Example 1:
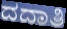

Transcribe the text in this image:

ದದಾತಿ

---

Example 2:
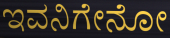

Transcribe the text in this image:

ಇವನಿಗೇನೋ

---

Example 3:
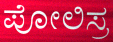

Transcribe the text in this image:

ಪೋಲಿಸ್ರ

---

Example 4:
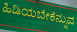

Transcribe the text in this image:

ಹಿಡಿಯಬೇಕೆನ್ನುವ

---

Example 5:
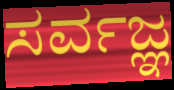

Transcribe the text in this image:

ಸರ್ವಜ್ಞ